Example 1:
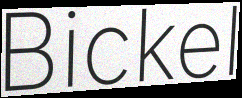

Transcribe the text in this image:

Bickel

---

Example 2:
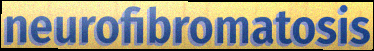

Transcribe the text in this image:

neurofibromatosis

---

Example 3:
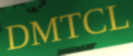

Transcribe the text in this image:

DMTCL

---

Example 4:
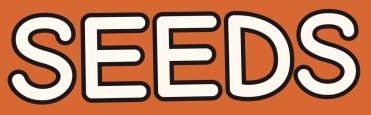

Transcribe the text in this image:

SEEDS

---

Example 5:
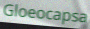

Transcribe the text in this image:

Gloeocapsa